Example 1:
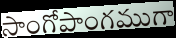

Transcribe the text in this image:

సాంగోపాంగముగా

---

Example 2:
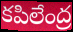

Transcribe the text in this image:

కపిలేంద్ర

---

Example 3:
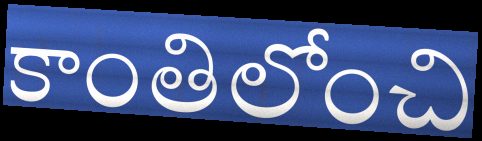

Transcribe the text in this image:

కాంతిలోంచి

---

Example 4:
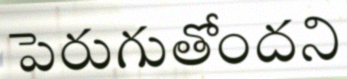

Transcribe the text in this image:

పెరుగుతోందని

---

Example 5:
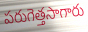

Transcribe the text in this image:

పరుగెత్తసాగారు